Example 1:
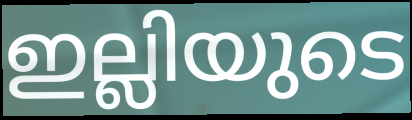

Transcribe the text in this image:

ഇല്ലിയുടെ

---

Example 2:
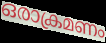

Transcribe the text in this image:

ഒരാക്രമണം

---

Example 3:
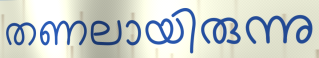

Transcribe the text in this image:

തണലായിരുന്നു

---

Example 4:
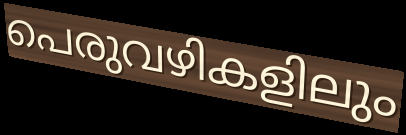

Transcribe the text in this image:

പെരുവഴികളിലും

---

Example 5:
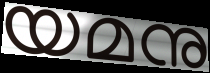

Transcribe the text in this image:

യമനു